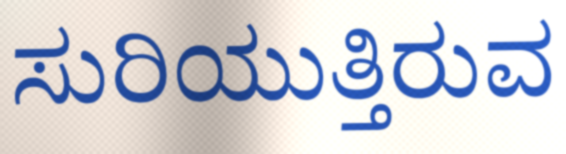
ಸುರಿಯುತ್ತಿರುವ